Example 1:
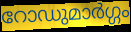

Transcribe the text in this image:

റോഡുമാർഗ്ഗം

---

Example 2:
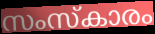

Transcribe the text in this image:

സംസ്‌കാരം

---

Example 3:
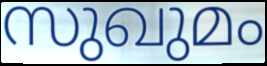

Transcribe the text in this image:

സുഖുമം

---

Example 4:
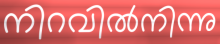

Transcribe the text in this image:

നിറവിൽനിന്നു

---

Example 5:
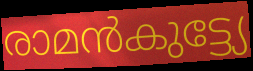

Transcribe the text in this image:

രാമൻകുട്ട്യേ